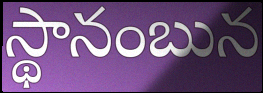
స్థానంబున